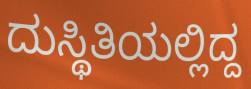
ದುಸ್ಥಿತಿಯಲ್ಲಿದ್ದ